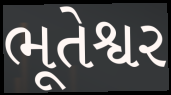
ભૂતેશ્વર